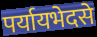
पर्यायभेदसे